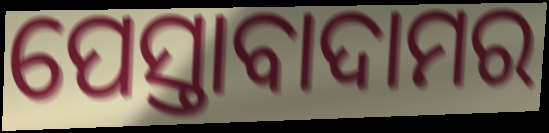
ପେସ୍ତାବାଦାମର